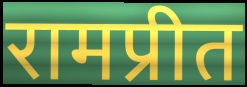
रामप्रीत